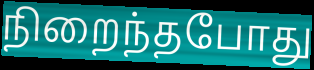
நிறைந்தபோது